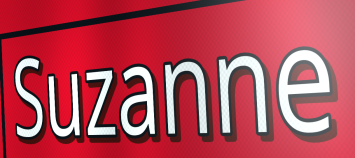
Suzanne